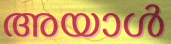
അയാൾ